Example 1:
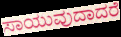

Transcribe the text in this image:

ಸಾಯುವುದಾದರೆ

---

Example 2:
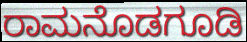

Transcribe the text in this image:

ರಾಮನೊಡಗೂಡಿ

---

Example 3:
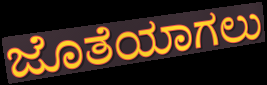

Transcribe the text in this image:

ಜೊತೆಯಾಗಲು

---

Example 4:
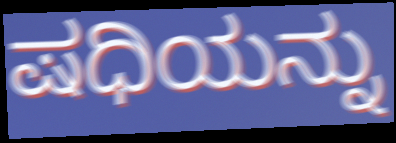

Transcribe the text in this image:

ಷಧಿಯನ್ನು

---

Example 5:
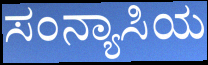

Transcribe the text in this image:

ಸಂನ್ಯಾಸಿಯ